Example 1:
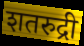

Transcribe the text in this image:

शतरुद्री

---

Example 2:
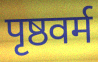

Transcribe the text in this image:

पृष्ठवर्म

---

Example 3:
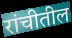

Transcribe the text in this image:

रांचीतील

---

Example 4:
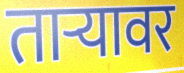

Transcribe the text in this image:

ताऱ्यावर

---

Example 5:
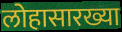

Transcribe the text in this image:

लोहासारख्या